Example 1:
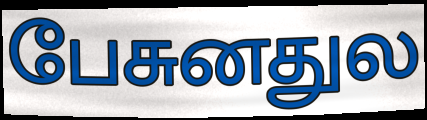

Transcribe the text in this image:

பேசுனதுல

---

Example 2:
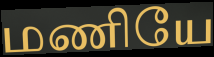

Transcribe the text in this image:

மணியே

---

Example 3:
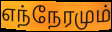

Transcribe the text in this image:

எந்நேரமும்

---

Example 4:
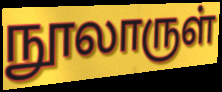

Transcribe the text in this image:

நூலாருள்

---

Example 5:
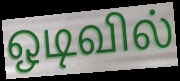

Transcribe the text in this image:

ஒடிவில்